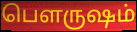
பௌருஷம்